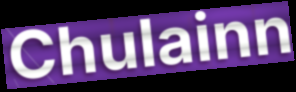
Chulainn